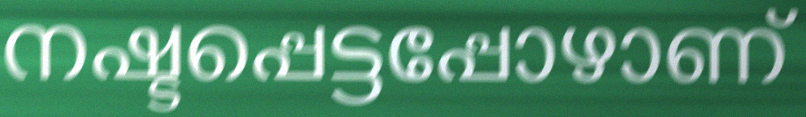
നഷ്ടപ്പെട്ടപ്പോഴാണ്